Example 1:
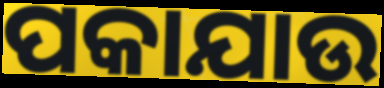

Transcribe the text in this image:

ପକାଯାଉ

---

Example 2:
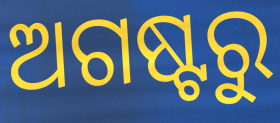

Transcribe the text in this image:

ଅଗଷ୍ଟରୁ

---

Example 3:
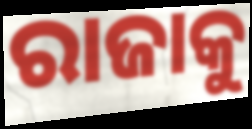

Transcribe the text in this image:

ରାଜାକୁ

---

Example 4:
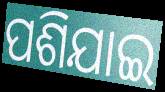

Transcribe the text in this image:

ପଶିଯାଇ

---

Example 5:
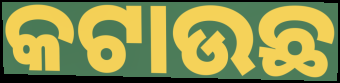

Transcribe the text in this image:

କଟାଉଛ